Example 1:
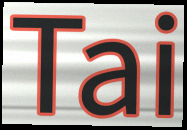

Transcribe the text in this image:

Tai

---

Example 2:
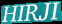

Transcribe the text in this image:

HIRJI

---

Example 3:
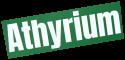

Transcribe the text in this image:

Athyrium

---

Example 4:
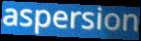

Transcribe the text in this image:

aspersion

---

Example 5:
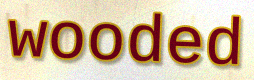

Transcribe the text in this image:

wooded